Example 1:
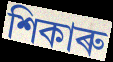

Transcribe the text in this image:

শিকাৰু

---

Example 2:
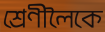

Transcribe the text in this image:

শ্ৰেণীলৈকে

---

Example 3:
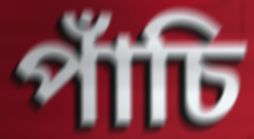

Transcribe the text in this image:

পাঁচি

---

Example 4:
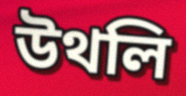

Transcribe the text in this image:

উথলি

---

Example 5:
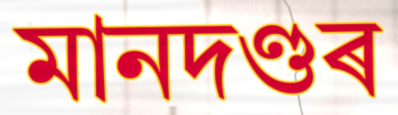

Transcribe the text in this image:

মানদণ্ডৰ